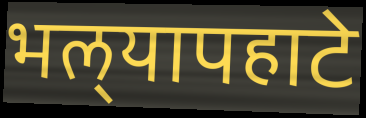
भल्यापहाटे